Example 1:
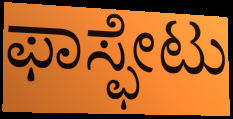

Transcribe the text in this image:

ಫಾಸ್ಫೇಟು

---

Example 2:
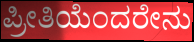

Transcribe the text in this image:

ಪ್ರೀತಿಯೆಂದರೇನು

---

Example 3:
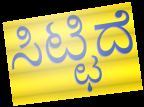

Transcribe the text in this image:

ಸಿಟ್ಟಿದೆ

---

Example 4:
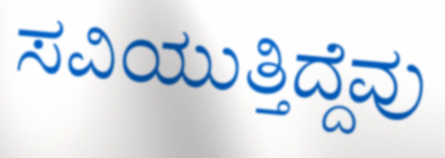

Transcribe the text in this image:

ಸವಿಯುತ್ತಿದ್ದೆವು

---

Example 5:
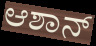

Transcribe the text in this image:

ಆಶಾನ್